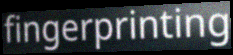
fingerprinting